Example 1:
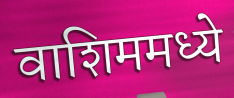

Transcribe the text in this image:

वाशिममध्ये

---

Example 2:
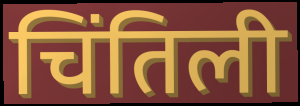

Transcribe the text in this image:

चिंतिली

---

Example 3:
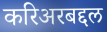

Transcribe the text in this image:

करिअरबद्दल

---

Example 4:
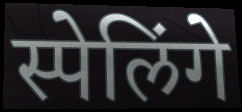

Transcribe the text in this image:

स्पेलिंगे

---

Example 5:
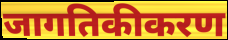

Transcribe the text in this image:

जागतिकीकरण